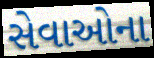
સેવાઓના